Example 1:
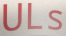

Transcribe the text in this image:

ULs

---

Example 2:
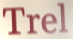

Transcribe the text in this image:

Trel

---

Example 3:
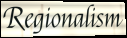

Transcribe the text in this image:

Regionalism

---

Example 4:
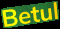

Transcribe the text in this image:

Betul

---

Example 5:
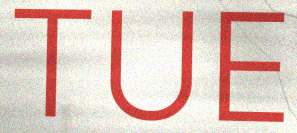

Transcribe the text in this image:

TUE